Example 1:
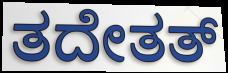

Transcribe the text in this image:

ತದೇತತ್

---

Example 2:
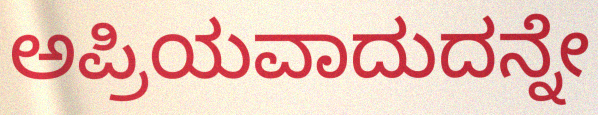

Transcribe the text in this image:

ಅಪ್ರಿಯವಾದುದನ್ನೇ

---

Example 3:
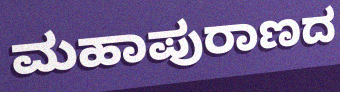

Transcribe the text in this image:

ಮಹಾಪುರಾಣದ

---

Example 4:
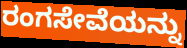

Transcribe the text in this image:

ರಂಗಸೇವೆಯನ್ನು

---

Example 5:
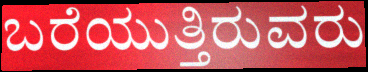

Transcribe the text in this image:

ಬರೆಯುತ್ತಿರುವರು